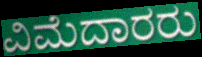
ವಿಮೆದಾರರು